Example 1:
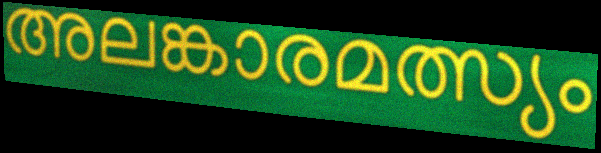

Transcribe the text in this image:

അലങ്കാരമത്സ്യം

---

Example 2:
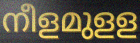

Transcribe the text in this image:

നീളമുളള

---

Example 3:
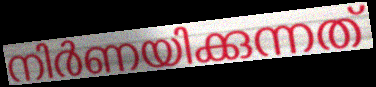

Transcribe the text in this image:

നിർണയിക്കുന്നത്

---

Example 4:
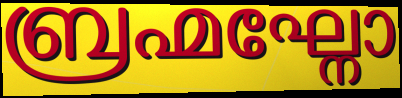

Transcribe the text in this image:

ബ്രഹ്മഘ്നോ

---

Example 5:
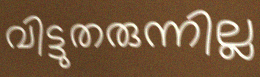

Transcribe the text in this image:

വിട്ടുതരുന്നില്ല